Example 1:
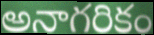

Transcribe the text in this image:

అనాగరికం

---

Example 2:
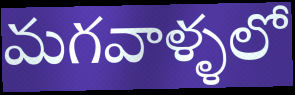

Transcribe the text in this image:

మగవాళ్ళలో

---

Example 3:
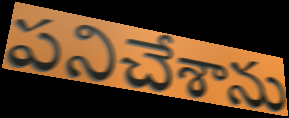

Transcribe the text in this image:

పనిచేశాను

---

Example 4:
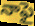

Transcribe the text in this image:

నాఫై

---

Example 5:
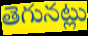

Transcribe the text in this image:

తెగునట్లు